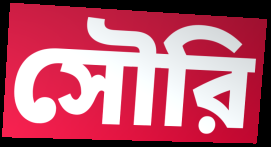
সৌরি